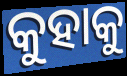
କୁହାକୁ